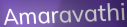
Amaravathi